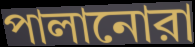
পালানোরা